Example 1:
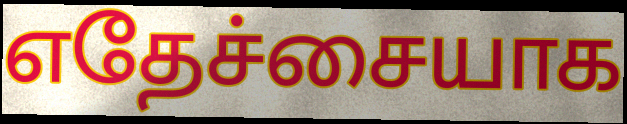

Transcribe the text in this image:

எதேச்சையாக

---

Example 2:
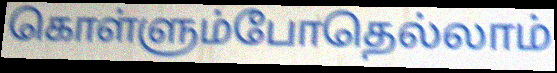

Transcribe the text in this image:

கொள்ளும்போதெல்லாம்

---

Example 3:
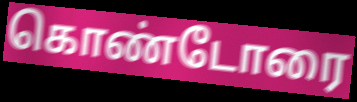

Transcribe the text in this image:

கொண்டோரை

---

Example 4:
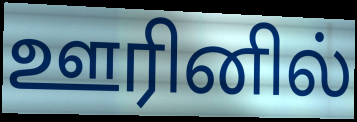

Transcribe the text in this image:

ஊரினில்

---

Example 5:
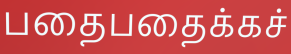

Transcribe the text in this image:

பதைபதைக்கச்